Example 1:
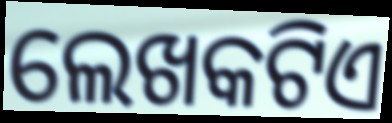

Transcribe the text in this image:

ଲେଖକଟିଏ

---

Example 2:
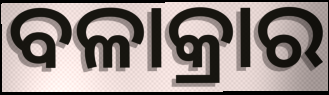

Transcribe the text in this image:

ବଳାକ୍ରାର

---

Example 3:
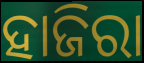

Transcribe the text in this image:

ହାଜିରା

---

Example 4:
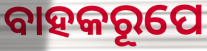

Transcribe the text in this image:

ବାହକରୂପେ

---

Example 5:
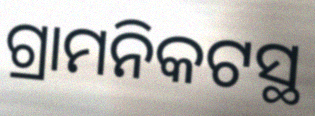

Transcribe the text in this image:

ଗ୍ରାମନିକଟସ୍ଥ